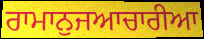
ਰਾਮਾਨੁਜਆਚਾਰੀਆ